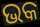
ଭକ